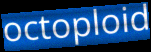
octoploid